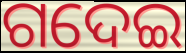
ଗଦେଇ